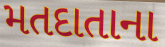
મતદાતાના